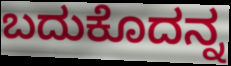
ಬದುಕೊದನ್ನ